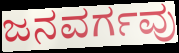
ಜನವರ್ಗವು